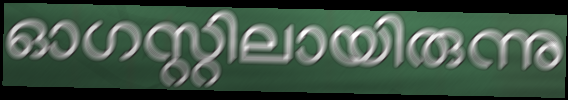
ഓഗസ്റ്റിലായിരുന്നു